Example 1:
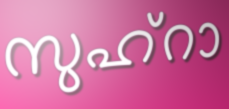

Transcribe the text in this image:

സുഹ്റാ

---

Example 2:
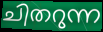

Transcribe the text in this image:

ചിതറുന്ന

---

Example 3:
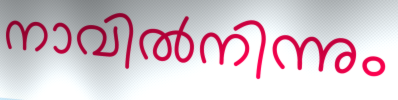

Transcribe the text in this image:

നാവിൽനിന്നും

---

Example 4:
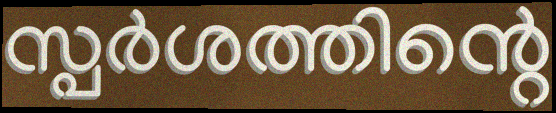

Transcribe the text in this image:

സ്പർശത്തിന്റെ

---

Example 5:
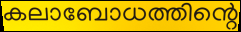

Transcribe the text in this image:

കലാബോധത്തിന്റെ